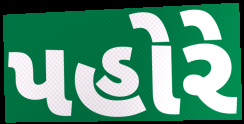
પહોરે